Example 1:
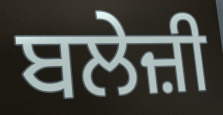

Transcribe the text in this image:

ਬਲੇਜ਼ੀ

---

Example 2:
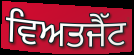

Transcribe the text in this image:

ਵਿਅਤਜੈੱਟ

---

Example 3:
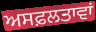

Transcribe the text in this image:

ਅਸਫ਼ਲਤਾਵਾਂ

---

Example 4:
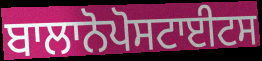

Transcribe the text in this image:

ਬਾਲਾਨੋਪੋਸਟਾਈਟਸ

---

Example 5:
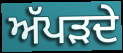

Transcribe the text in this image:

ਅੱਪੜਦੇ